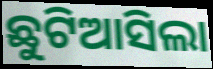
ଛୁଟିଆସିଲା